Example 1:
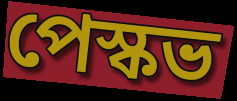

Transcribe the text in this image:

পেস্কভ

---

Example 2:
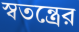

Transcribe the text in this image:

স্বতন্ত্রের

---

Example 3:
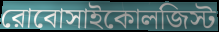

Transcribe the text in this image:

রোবোসাইকোলজিস্ট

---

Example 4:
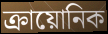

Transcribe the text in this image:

ক্রায়োনিক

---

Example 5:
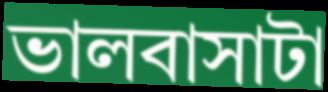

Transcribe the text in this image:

ভালবাসাটা